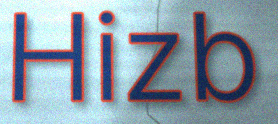
Hizb